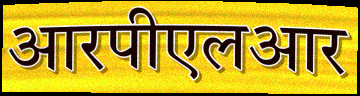
आरपीएलआर